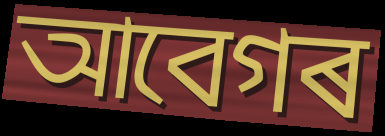
আবেগৰ